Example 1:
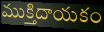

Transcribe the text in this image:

ముక్తిదాయకం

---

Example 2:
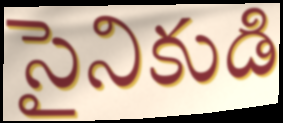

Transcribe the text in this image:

సైనికుడి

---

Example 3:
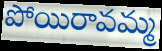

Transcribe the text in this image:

పోయిరావమ్మ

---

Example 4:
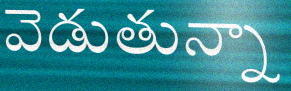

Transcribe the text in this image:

వెడుతున్నా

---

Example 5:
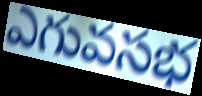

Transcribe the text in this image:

ఎగువసభ